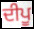
ਦੀਪੂ